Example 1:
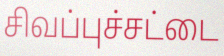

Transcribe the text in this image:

சிவப்புச்சட்டை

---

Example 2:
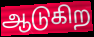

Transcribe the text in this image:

ஆடுகிற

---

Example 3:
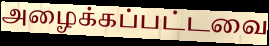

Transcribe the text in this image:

அழைக்கப்பட்டவை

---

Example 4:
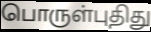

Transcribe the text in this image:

பொருள்புதிது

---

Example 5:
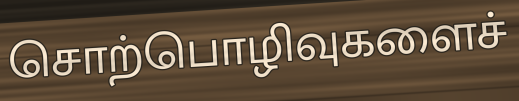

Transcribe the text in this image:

சொற்பொழிவுகளைச்